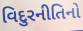
વિદુરનીતિનો